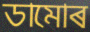
ডামোৰ